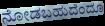
ನೋಡಬಹುದೆಂದೂ